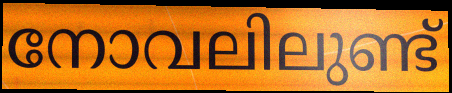
നോവലിലുണ്ട്